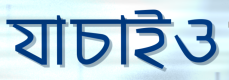
যাচাইও